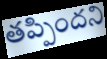
తప్పిందని